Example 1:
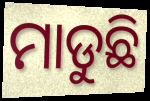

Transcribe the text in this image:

ମାଡୁଛି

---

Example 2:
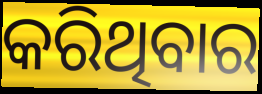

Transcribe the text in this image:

କରିଥିବାର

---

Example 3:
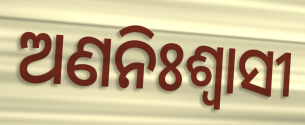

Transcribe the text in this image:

ଅଣନିଃଶ୍ଵାସୀ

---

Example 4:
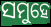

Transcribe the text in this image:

ସମୁହେ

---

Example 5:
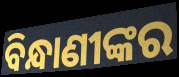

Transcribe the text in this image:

ବିନ୍ଧାଣୀଙ୍କର